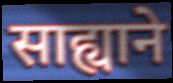
साह्याने